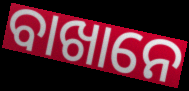
ବାଖାନେ